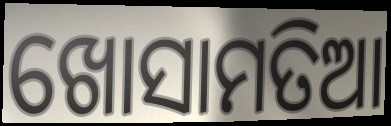
ଖୋସାମତିଆ